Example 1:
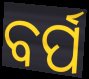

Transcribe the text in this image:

ବର୍ପ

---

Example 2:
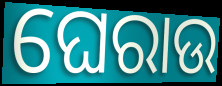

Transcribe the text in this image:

ଘେରାଉ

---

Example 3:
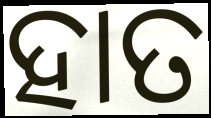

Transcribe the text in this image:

ହାତ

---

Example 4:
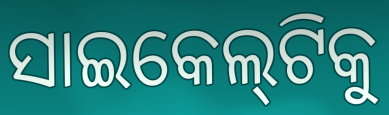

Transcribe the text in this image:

ସାଇକେଲ୍‌ଟିକୁ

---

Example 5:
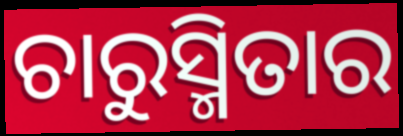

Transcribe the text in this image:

ଚାରୁସ୍ମିତାର